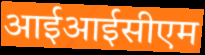
आईआईसीएम